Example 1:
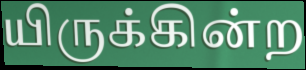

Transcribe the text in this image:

யிருக்கின்ற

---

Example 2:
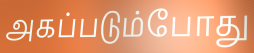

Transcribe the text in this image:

அகப்படும்போது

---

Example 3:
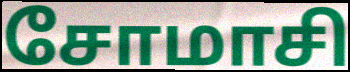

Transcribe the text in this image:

சோமாசி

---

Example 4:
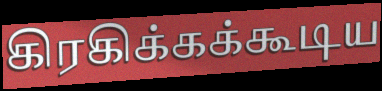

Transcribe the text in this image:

கிரகிக்கக்கூடிய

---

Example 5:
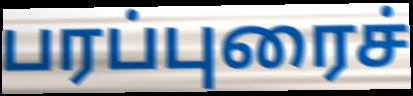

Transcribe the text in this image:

பரப்புரைச்